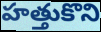
హత్తుకొని